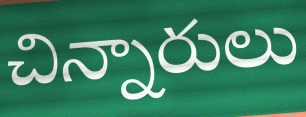
చిన్నారులు